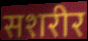
सशरीर